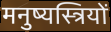
मनुष्यस्त्रियों